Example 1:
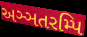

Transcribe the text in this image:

અઞ્ઞતરમ્પિ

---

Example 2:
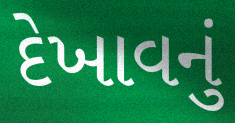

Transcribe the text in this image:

દેખાવનું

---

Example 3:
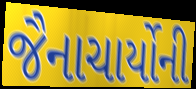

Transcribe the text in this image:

જૈનાચાર્યોની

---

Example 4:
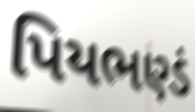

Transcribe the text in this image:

પિયભણ્ડં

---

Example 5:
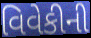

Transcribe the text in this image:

વિવેકીની